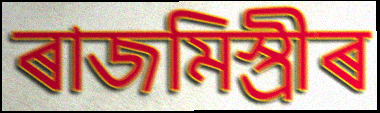
ৰাজমিস্ত্ৰীৰ